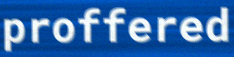
proffered